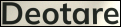
Deotare